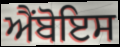
ਐਂਬੋਇਸ